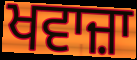
ਖਵਾਜ਼ਾ